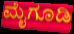
ಮೈಗೂಡಿ